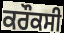
ਕਰੌਕਸੀ